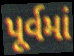
પૂર્વમાં